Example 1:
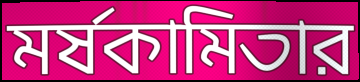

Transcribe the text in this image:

মর্ষকামিতার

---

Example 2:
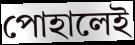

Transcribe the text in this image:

পোহালেই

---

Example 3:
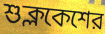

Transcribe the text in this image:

শুক্লকেশের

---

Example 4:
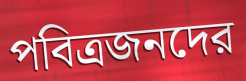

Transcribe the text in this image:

পবিত্রজনদের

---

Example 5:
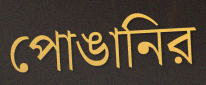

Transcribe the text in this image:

পোঙানির